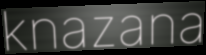
knazana